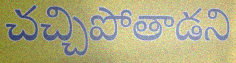
చచ్చిపోతాడని